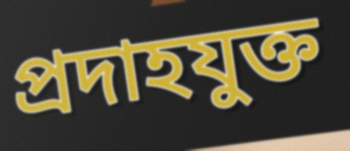
প্রদাহযুক্ত